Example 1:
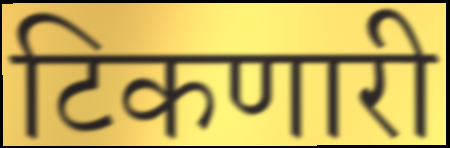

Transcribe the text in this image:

टिकणारी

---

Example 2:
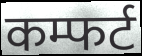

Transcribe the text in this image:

कम्फर्ट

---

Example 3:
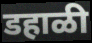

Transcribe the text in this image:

डहाळी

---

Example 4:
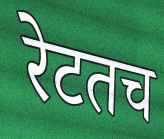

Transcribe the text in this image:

रेटतच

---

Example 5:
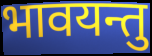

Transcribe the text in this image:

भावयन्तु